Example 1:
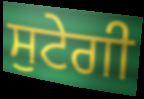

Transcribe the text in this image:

ਸੁਟੇਗੀ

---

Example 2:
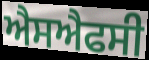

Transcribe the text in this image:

ਐਸਐਫਸੀ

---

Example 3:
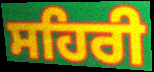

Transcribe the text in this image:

ਸਹਿਰੀ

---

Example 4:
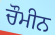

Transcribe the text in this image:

ਚੌਮੀਨ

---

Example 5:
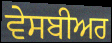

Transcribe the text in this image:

ਵੇਸਬੀਅਰ